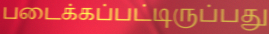
படைக்கப்பட்டிருப்பது